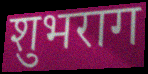
शुभराग